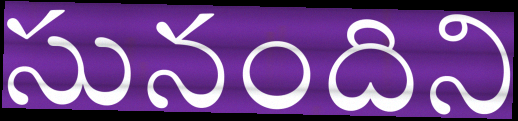
సునందిని